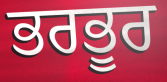
ਭਰਭੂਰ